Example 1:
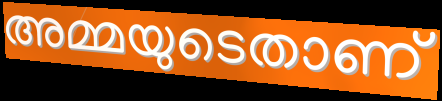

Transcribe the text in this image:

അമ്മയുടെതാണ്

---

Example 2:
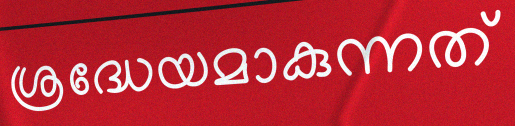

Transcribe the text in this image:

ശ്രദ്ധേയമാകുന്നത്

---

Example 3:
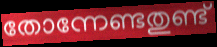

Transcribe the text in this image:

തോന്നേണ്ടതുണ്ട്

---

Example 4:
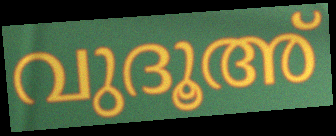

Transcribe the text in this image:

വുദൂഅ്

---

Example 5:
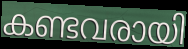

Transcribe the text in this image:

കണ്ടവരായി